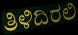
ತಿಳಿದಿರಲಿ